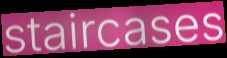
staircases